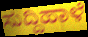
ಸುದ್ದಿಹಾಳೆ